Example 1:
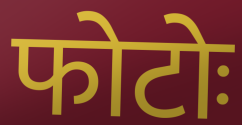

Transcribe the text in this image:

फोटोः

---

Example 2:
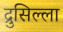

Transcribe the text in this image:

द्रुसिल्ला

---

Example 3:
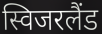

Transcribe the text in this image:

स्विजरलैंड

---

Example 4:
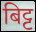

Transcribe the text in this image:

बिट्ट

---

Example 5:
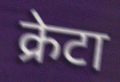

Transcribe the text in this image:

क्रेटा